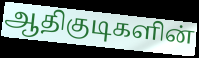
ஆதிகுடிகளின்